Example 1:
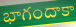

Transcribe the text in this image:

భాగందాకా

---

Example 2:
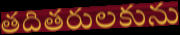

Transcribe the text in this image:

తదితరులకును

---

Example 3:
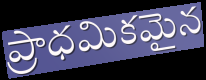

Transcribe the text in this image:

ప్రాధమికమైన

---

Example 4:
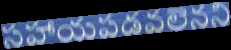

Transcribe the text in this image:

సహాయపడవలెనని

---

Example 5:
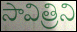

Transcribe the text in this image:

సావిత్రిని